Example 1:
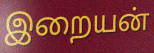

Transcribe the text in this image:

இறையன்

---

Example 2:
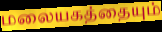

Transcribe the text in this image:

மலையகத்தையும்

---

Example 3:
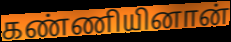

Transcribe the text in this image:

கண்ணியினான்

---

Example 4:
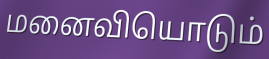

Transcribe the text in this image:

மனைவியொடும்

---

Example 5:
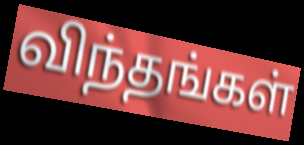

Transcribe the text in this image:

விந்தங்கள்